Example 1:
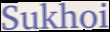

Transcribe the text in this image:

Sukhoi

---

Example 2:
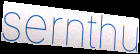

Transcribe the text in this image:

sernthu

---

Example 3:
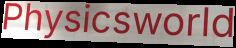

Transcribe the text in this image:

Physicsworld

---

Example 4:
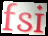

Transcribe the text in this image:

fsi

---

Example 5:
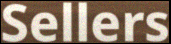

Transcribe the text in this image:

Sellers